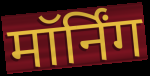
मॉर्निंग